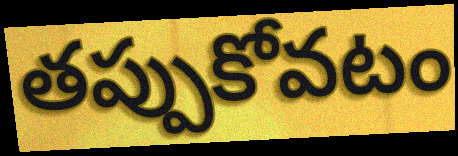
తప్పుకోవటం